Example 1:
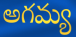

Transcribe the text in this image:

అగమ్య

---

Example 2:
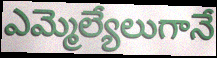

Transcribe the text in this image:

ఎమ్మెల్యేలుగానే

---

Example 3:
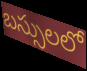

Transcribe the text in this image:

బస్సులలో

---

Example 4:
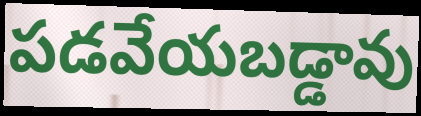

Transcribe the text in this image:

పడవేయబడ్డావు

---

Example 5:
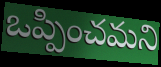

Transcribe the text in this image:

ఒప్పించమని